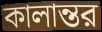
কালান্তর